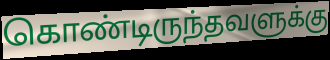
கொண்டிருந்தவளுக்கு